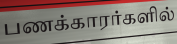
பணக்காரர்களில்